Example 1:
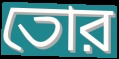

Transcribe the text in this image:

তোর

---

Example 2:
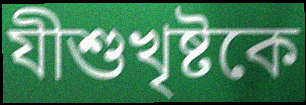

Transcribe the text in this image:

যীশুখৃষ্টকে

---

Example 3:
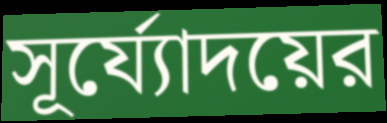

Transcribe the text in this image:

সূর্য্যোদয়ের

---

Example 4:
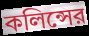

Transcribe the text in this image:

কলিন্সের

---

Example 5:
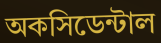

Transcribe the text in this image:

অকসিডেন্টাল